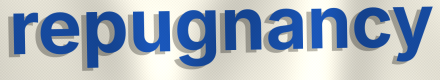
repugnancy